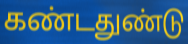
கண்டதுண்டு